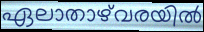
ഏലാതാഴ്‌വരയിൽ